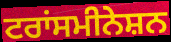
ਟਰਾਂਸਮੀਨੇਸ਼ਨ